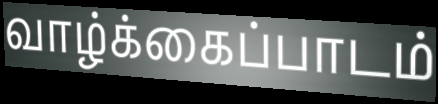
வாழ்க்கைப்பாடம்